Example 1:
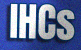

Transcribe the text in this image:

IHCs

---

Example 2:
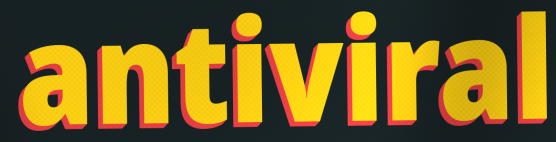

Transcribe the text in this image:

antiviral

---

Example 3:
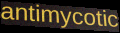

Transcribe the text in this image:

antimycotic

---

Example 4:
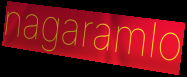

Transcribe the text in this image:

nagaramlo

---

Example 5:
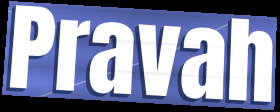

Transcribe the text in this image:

Pravah